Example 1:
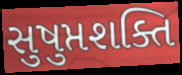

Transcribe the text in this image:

સુષુપ્તશક્તિ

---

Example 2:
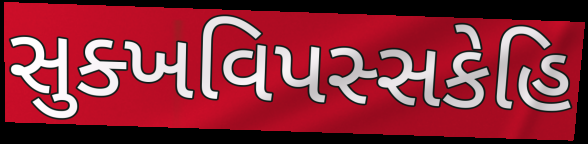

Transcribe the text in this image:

સુક્ખવિપસ્સકેહિ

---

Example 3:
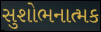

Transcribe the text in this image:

સુશોભનાત્મક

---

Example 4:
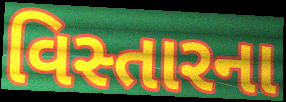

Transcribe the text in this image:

વિસ્તારના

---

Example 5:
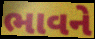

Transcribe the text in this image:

ભાવને